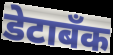
डेटाबँक